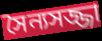
সৈন্যসজ্জা